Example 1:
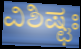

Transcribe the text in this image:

ವಿಶಿಷ್ಟಃ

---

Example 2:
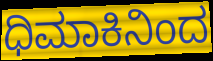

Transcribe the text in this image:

ಧಿಮಾಕಿನಿಂದ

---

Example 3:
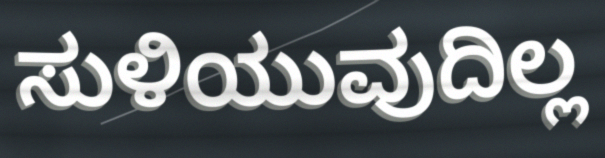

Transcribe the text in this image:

ಸುಳಿಯುವುದಿಲ್ಲ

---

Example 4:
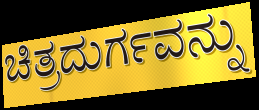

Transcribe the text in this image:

ಚಿತ್ರದುರ್ಗವನ್ನು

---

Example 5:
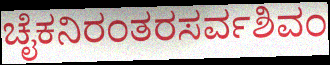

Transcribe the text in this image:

ಚೈಕನಿರಂತರಸರ್ವಶಿವಂ